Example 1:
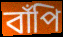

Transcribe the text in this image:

বাঁপি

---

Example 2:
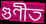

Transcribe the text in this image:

গুণীত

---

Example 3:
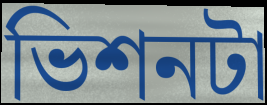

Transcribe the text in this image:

ভিশনটা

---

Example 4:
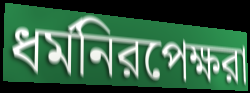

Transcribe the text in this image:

ধর্মনিরপেক্ষরা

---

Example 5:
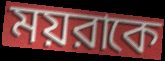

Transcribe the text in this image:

ময়রাকে